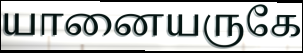
யானையருகே